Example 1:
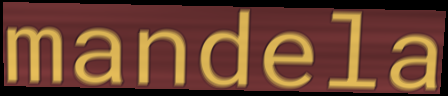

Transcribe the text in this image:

mandela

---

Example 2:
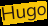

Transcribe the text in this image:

Hugo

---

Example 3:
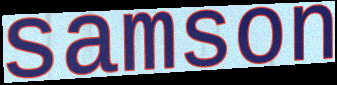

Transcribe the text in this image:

samson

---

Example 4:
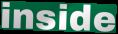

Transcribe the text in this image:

inside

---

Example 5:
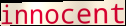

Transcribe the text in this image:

innocent